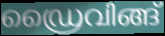
ഡ്രൈവിങ്ങ്